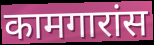
कामगारांस